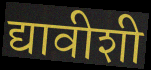
द्यावीशी